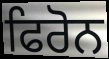
ਫਿਰੋਨ